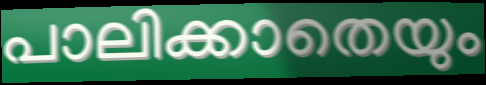
പാലിക്കാതെയും